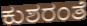
ಕುಶರಂತೆ